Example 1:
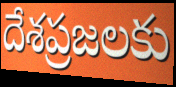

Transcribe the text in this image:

దేశప్రజలకు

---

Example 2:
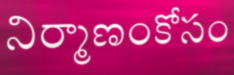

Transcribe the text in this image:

నిర్మాణంకోసం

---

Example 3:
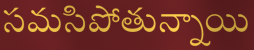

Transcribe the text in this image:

సమసిపోతున్నాయి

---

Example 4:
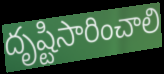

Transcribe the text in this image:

దృష్టిసారించాలి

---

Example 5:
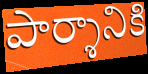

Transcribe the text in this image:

పార్శానికి